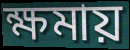
ক্ষমায়